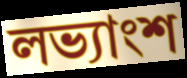
লভ্যাংশ